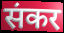
संकर